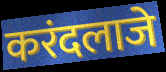
करंदलाजे